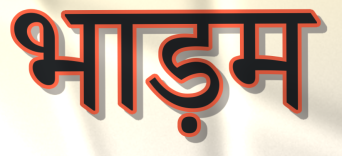
भाड़म